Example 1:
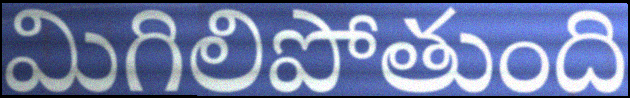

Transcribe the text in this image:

మిగిలిపోతుంది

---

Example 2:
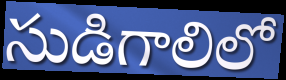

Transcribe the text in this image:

సుడిగాలిలో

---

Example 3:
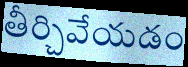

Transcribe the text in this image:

తీర్చివేయడం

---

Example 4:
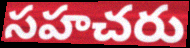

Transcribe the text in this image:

సహచరు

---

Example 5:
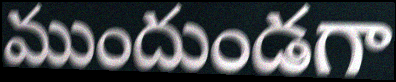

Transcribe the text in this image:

ముందుండగా